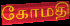
கோமதி